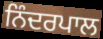
ਨਿੰਦਰਪਾਲ